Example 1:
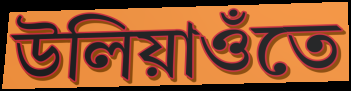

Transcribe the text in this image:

উলিয়াওঁতে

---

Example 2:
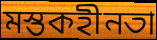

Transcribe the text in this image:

মস্তকহীনতা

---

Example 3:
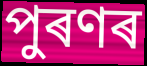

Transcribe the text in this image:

পুৰণৰ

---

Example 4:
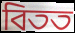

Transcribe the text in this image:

বিতত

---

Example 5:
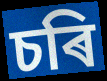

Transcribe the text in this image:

চৰি